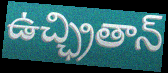
ఉచ్ఛ్రితాన్